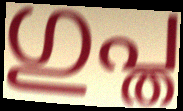
ഗുപ്ത